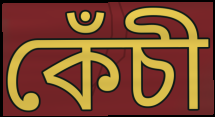
কেঁচী